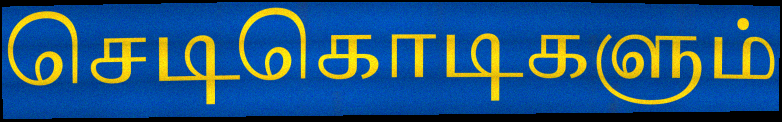
செடிகொடிகளும்